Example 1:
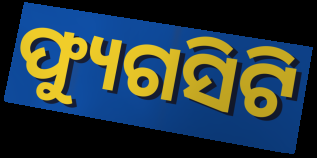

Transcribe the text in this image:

ଫ୍ୟୁଗସିଟି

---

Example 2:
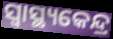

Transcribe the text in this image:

ସ୍ବାସ୍ଥ୍ୟକେନ୍ଦ୍ର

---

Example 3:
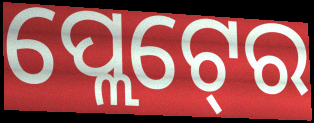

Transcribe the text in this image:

ପ୍ଲେଟ୍‍ରେ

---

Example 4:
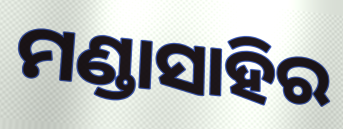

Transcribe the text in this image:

ମଣ୍ଡାସାହିର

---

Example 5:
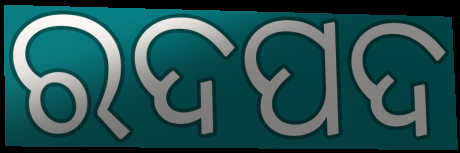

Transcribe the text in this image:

ରଦପଦ